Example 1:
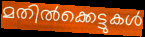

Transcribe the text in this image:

മതിൽക്കെട്ടുകൾ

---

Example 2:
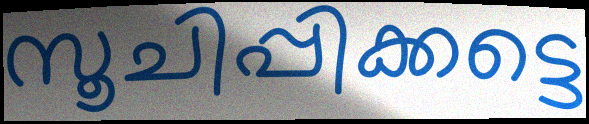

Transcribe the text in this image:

സൂചിപ്പിക്കട്ടെ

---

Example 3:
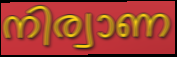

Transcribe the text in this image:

നിര്വാണ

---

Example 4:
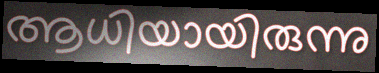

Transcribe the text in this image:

ആധിയായിരുന്നു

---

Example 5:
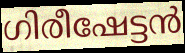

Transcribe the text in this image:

ഗിരീഷേട്ടൻ